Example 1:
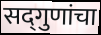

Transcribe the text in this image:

सद्‍गुणांचा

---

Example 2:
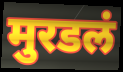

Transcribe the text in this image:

मुरडलं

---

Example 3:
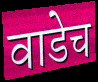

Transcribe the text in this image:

वाडेच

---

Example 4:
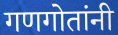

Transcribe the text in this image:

गणगोतांनी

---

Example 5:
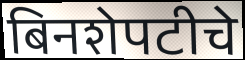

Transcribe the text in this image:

बिनशेपटीचे